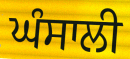
ਘੰਸਾਲੀ